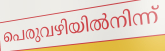
പെരുവഴിയിൽനിന്ന്